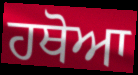
ਹਥੋਆ